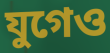
যুগেও